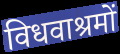
विधवाश्रमों